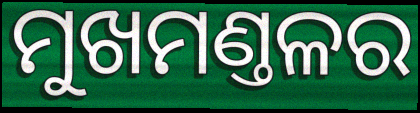
ମୁଖମଣ୍ତଳର